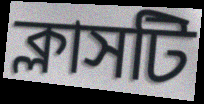
ক্লাসটি